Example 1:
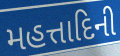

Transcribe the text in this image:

મહત્તાદિની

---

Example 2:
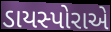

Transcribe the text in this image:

ડાયસ્પોરાએ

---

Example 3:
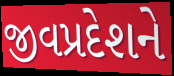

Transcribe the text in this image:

જીવપ્રદેશને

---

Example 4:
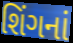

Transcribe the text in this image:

શિંગનાં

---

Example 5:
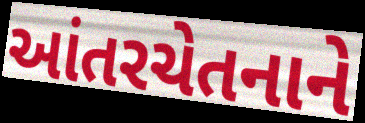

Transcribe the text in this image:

આંતરચેતનાને